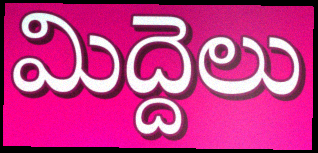
మిద్దెలు